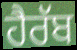
ਹੈਰੱਬ